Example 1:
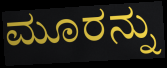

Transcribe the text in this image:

ಮೂರನ್ನು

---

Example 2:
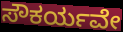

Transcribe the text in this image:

ಸೌಕರ್ಯವೇ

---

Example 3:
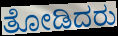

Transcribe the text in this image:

ತೋಡಿದರು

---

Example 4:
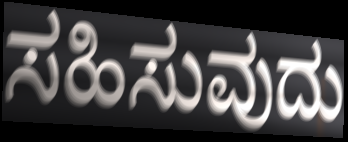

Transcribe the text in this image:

ಸಹಿಸುವುದು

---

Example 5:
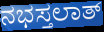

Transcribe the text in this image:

ನಭಸ್ತಲಾತ್